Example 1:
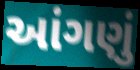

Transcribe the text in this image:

આંગણું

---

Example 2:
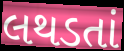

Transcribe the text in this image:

લથડતાં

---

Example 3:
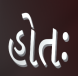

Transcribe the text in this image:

હોતઃ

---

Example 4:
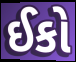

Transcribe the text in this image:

ઈકો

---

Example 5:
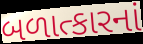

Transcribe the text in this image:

બળાત્કારનાં